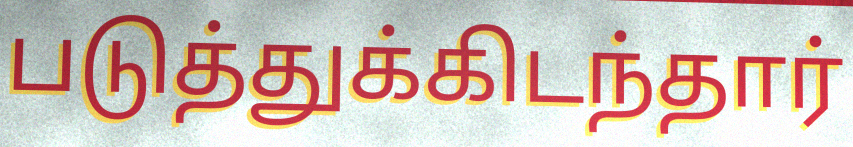
படுத்துக்கிடந்தார்